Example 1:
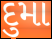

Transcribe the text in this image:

દુમા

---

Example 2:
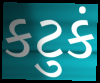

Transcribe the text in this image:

કટુકં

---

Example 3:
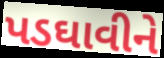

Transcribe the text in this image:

પડઘાવીને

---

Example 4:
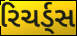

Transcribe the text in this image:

રિચર્ડ્સ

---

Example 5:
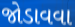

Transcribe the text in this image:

જોડાવવા